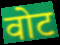
वोट